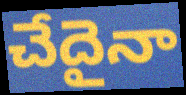
చేదైనా